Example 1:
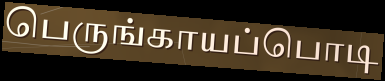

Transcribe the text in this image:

பெருங்காயப்பொடி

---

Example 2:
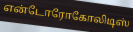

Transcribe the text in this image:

என்டோரோகோலிடிஸ்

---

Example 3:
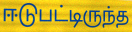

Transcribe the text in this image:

ஈடுபட்டிருந்த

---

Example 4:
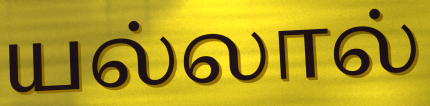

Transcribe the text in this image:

யல்லால்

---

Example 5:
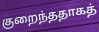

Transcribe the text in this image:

குறைந்ததாகத்